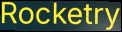
Rocketry